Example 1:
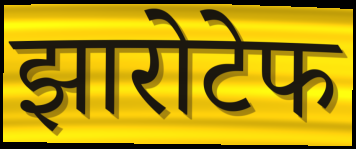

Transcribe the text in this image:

झारोटेफ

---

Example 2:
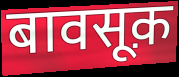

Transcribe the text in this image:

बावसूक़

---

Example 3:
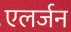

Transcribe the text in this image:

एलर्जन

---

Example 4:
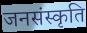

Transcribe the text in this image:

जनसंस्कृति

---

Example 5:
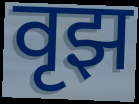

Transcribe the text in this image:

वृझ